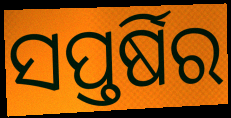
ସପ୍ତର୍ଷିର